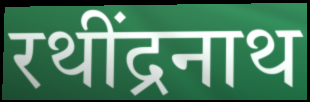
रथींद्रनाथ